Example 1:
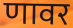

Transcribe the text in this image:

णावर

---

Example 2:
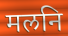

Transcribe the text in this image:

मलनि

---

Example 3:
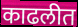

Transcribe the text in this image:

काढलीत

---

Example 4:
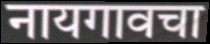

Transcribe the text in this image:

नायगावचा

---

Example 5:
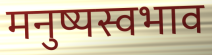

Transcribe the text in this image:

मनुष्यस्वभाव